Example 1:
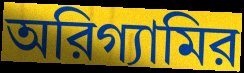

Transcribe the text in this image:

অরিগ্যামির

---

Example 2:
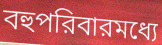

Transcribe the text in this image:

বহুপরিবারমধ্যে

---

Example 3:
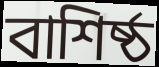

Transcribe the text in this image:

বাশিষ্ঠ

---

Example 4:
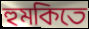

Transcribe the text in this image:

হুমকিতে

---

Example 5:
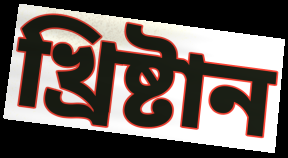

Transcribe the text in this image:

খ্রিষ্টান